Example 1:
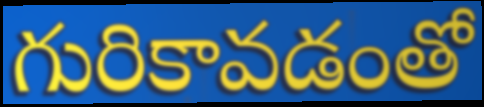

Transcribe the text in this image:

గురికావడంతో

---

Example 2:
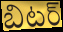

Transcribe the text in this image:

బిటర్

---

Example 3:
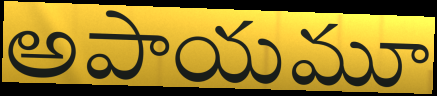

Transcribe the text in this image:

అపాయమూ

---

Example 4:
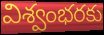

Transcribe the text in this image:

విశ్వంభరకు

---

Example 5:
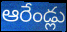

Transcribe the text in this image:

ఆరేండ్లు